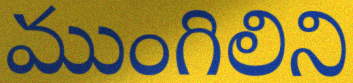
ముంగిలిని